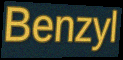
Benzyl